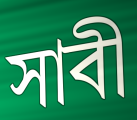
সাবী